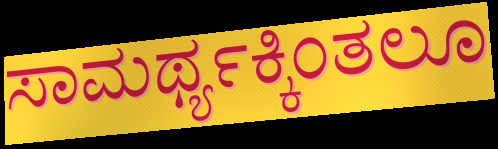
ಸಾಮರ್ಥ್ಯಕ್ಕಿಂತಲೂ